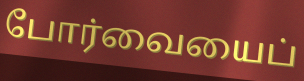
போர்வையைப்